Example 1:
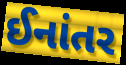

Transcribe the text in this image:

ઈનાંતર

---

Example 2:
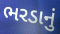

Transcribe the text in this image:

ભરડાનું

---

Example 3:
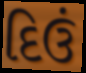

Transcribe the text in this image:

દિઉં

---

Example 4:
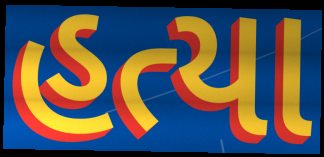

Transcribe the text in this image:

હત્યા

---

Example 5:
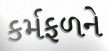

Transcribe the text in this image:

કર્મફળને